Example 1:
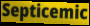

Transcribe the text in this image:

Septicemic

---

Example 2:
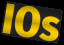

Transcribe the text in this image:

IOs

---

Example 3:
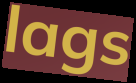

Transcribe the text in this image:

lags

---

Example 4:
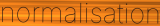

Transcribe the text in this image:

normalisation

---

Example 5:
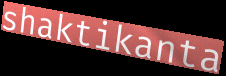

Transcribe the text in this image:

shaktikanta